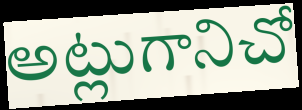
అట్లుగానిచో